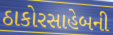
ઠાકોરસાહેબની